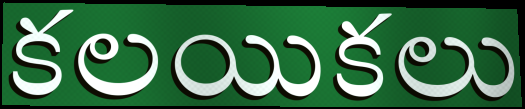
కలయికలు